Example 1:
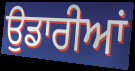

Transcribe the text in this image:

ਉਡਾਰੀਆਂ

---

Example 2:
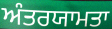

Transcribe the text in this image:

ਅੰਤਰਯਾਮਤਾ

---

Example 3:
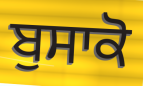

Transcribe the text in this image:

ਬੁਸਾਕੋ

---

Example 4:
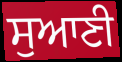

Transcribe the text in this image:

ਸੁਆਣੀ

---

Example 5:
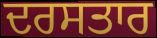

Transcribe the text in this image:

ਦਰਸਤਾਰ